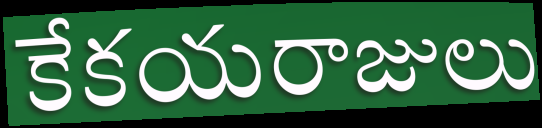
కేకయరాజులు